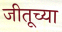
जीतूच्या